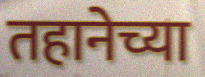
तहानेच्या